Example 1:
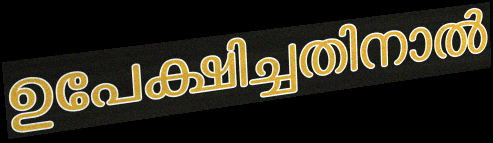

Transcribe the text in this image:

ഉപേക്ഷിച്ചതിനാൽ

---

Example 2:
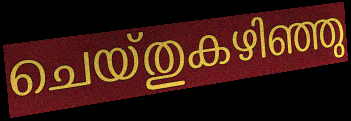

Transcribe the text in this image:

ചെയ്തുകഴിഞ്ഞു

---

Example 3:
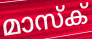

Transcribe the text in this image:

മാസ്ക്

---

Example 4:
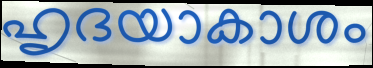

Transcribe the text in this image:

ഹൃദയാകാശം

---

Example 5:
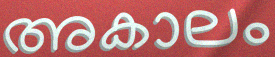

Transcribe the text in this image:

അകാലം